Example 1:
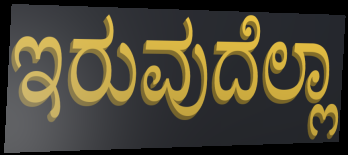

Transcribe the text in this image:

ಇರುವುದೆಲ್ಲಾ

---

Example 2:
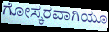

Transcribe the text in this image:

ಗೋಸ್ಕರವಾಗಿಯೂ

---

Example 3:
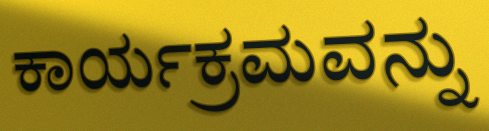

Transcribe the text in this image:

ಕಾರ್ಯಕ್ರಮವನ್ನು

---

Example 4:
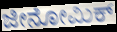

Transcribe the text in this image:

ಜೀನೋಮಿಕ್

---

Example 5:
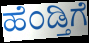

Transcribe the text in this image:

ಹೆಂಡ್ತಿಗೆ